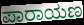
ಪಾರಾಯಣ